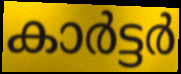
കാർട്ടർ